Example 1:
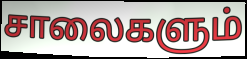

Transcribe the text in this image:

சாலைகளும்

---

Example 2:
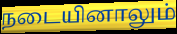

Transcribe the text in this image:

நடையினாலும்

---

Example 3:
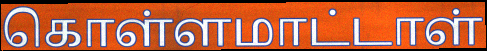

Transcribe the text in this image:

கொள்ளமாட்டாள்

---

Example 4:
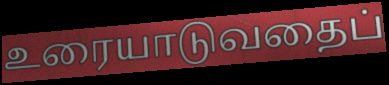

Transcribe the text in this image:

உரையாடுவதைப்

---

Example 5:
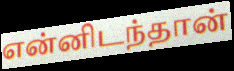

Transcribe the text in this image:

என்னிடந்தான்